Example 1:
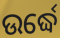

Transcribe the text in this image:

ଉର୍ଦ୍ଧେ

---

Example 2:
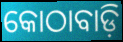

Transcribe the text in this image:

କୋଠାବାଡ଼ି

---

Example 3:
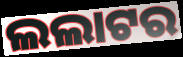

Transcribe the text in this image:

ଲଲାଟର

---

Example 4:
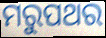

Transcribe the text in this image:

ମରୁପଥର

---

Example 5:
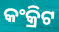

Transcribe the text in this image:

କଂକ୍ରିଟ